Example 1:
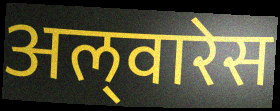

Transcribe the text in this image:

अल्वारेस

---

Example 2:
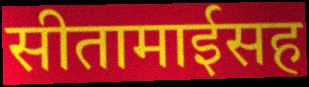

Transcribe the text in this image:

सीतामाईसह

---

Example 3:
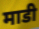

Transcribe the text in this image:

माडी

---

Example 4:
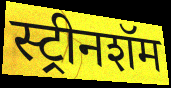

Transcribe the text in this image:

स्ट्रीनशॅम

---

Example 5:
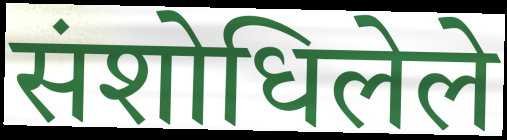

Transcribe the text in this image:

संशोधिलेले